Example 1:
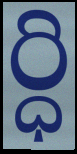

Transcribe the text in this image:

ర్ధి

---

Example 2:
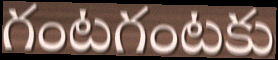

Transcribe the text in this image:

గంటగంటకు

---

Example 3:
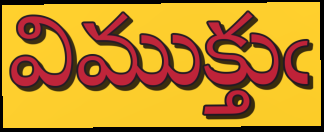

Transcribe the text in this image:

విముక్తుఁ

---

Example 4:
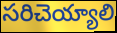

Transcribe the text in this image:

సరిచెయ్యాలి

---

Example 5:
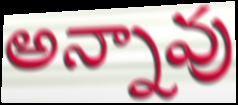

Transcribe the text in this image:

అన్నావు